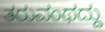
ತರುವಂಥದ್ದು